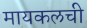
मायकलची